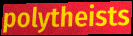
polytheists